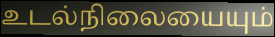
உடல்நிலையையும்